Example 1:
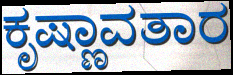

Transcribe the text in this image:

ಕೃಷ್ಣಾವತಾರ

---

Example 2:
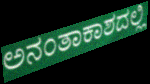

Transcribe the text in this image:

ಅನಂತಾಕಾಶದಲ್ಲಿ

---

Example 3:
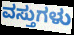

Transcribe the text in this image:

ವಸ್ತುಗಳು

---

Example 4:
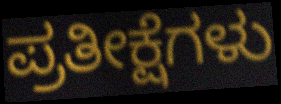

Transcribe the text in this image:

ಪ್ರತೀಕ್ಷೆಗಳು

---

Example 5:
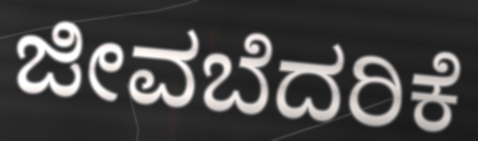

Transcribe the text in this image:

ಜೀವಬೆದರಿಕೆ